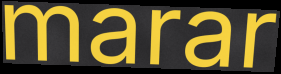
marar